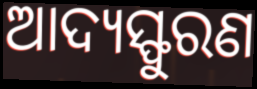
ଆଦ୍ୟସ୍ଫୁରଣ